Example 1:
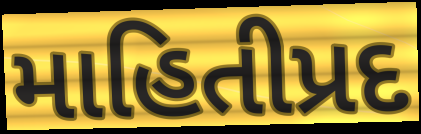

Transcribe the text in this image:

માહિતીપ્રદ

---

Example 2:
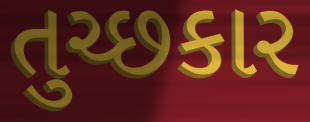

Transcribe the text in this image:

તુચ્છકાર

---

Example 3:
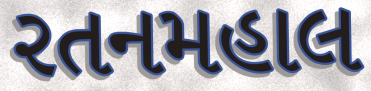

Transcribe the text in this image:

રતનમહાલ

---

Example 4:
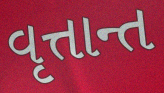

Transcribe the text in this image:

વૃત્તાન્ત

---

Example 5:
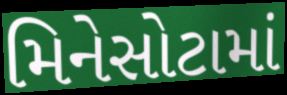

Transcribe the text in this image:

મિનેસોટામાં